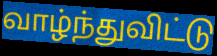
வாழ்ந்துவிட்டு